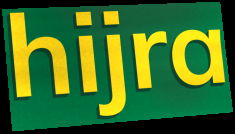
hijra